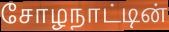
சோழநாட்டின்